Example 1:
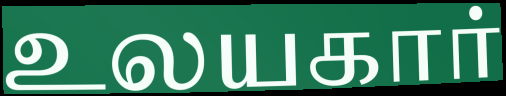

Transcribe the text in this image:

உலயகார்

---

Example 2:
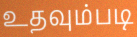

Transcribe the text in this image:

உதவும்படி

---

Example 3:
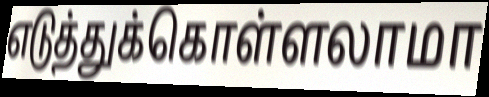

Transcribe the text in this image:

எடுத்துக்கொள்ளலாமா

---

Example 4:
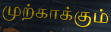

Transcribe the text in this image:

முற்காக்கும்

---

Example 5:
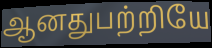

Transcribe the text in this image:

ஆனதுபற்றியே